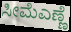
ಸೀಮೆಎಣ್ಣೆ